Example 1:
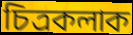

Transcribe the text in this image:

চিত্ৰকলাক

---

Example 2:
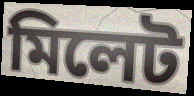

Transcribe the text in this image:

মিলেট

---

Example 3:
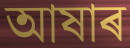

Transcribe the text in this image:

আষাৰ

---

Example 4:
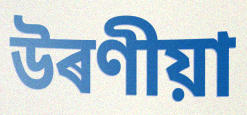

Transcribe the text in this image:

উৰণীয়া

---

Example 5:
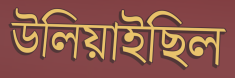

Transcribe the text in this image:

উলিয়াইছিল